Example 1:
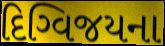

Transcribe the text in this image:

દિગ્વિજયના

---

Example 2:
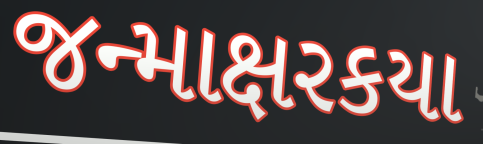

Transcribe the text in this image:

જન્માક્ષરકયા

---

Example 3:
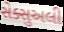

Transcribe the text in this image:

સેક્સુઅલી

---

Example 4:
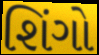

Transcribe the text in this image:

શિંગો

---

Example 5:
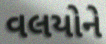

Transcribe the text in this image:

વલયોને